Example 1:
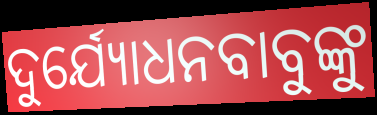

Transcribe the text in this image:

ଦୁର୍ଯ୍ୟୋଧନବାବୁଙ୍କୁ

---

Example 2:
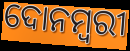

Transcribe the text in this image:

ଦୋନମ୍ବରୀ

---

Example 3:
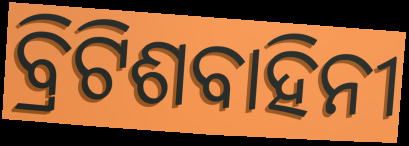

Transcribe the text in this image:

ବ୍ରିଟିଶବାହିନୀ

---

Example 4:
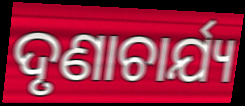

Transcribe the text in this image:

ଦୃଣାଚାର୍ଯ୍ୟ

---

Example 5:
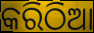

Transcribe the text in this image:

କରିଠିଆ